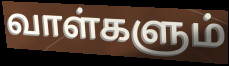
வாள்களும்